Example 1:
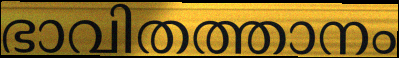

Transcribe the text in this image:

ഭാവിതത്താനം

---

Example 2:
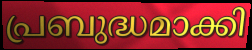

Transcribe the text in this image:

പ്രബുദ്ധമാക്കി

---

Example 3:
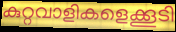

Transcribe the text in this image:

കുറ്റവാളികളെക്കൂടി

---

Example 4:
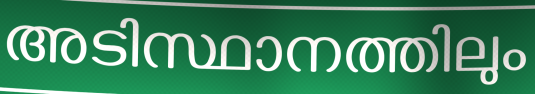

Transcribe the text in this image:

അടിസ്ഥാനത്തിലും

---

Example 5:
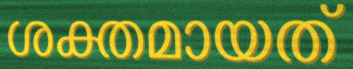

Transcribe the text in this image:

ശക്തമായത്